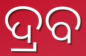
ଦ୍ରବ